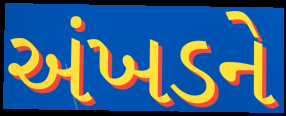
અંખડને